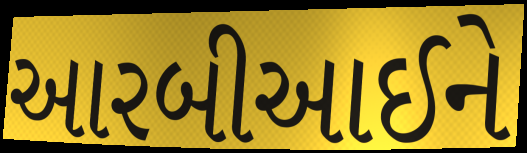
આરબીઆઈને